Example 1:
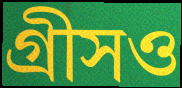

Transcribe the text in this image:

গ্রীসও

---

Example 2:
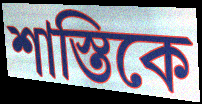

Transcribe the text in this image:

শাস্তিকে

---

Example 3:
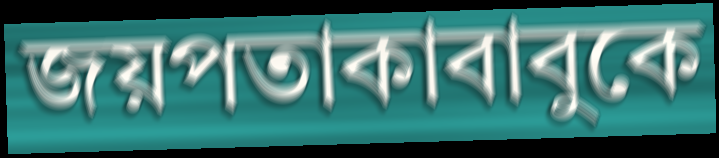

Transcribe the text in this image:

জয়পতাকাবাবুকে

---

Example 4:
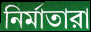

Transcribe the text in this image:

নির্মাতারা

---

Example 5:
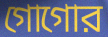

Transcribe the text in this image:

গোগোর